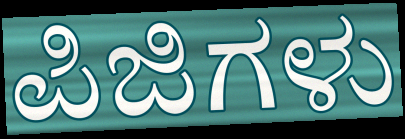
ಪಿಜಿಗಳು